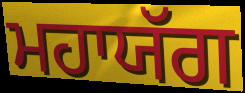
ਮਹਾਯੱਗ